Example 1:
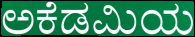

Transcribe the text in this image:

ಅಕೆಡಮಿಯ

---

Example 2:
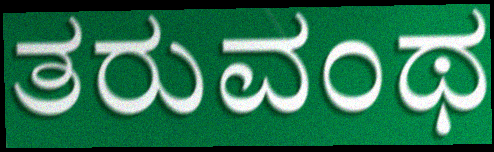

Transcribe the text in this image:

ತರುವಂಥ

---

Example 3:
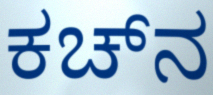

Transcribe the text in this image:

ಕಚ್‌ನ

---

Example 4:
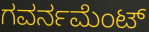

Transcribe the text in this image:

ಗವರ್ನಮೆಂಟ್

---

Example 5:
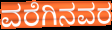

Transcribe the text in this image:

ವರೆಗಿನವರ